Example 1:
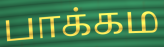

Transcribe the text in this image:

பாக்கம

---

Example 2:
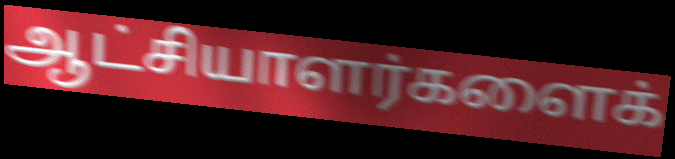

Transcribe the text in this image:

ஆட்சியாளர்களைக்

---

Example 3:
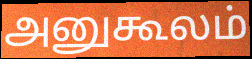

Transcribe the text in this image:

அனுகூலம்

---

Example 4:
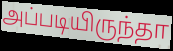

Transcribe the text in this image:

அப்படியிருந்தா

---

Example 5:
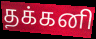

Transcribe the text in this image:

தக்கனி